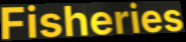
Fisheries